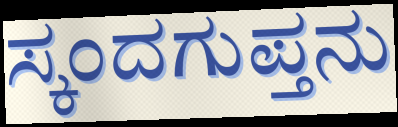
ಸ್ಕಂದಗುಪ್ತನು